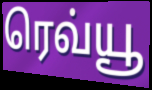
ரெவ்யூ